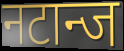
नटान्ज